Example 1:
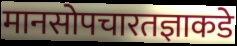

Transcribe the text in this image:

मानसोपचारतज्ञाकडे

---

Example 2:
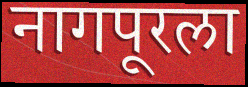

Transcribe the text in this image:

नागपूरला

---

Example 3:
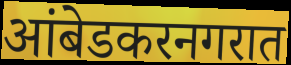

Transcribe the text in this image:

आंबेडकरनगरात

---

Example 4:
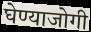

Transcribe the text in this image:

घेण्याजोगी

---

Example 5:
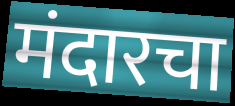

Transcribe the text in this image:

मंदारचा